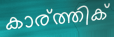
കാര്ത്തിക്